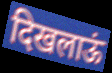
दिखलाऊं